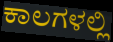
ಕಾಲಗಳಲ್ಲಿ